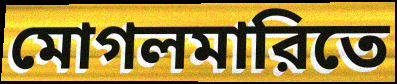
মোগলমারিতে